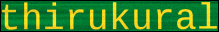
thirukural